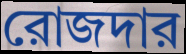
রোজদার